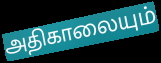
அதிகாலையும்